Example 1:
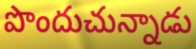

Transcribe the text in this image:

పొందుచున్నాడు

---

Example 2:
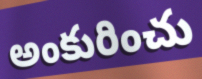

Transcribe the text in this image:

అంకురించు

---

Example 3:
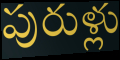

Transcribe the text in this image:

పురుళ్లు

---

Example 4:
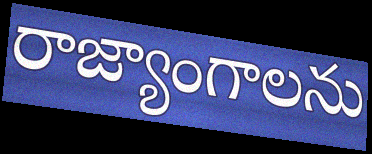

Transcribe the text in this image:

రాజ్యాంగాలను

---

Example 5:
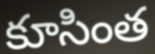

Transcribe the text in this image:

కూసింత